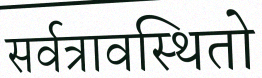
सर्वत्रावस्थितो